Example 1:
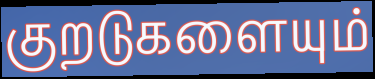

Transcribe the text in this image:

குறடுகளையும்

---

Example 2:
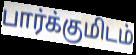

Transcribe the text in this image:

பார்க்குமிடம்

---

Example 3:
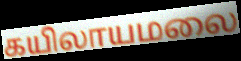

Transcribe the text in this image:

கயிலாயமலை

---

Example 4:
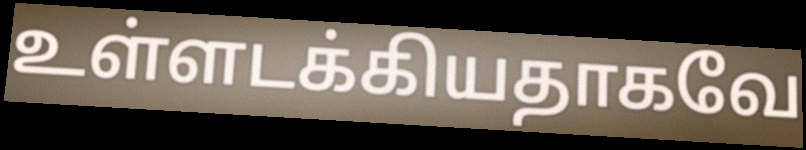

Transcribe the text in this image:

உள்ளடக்கியதாகவே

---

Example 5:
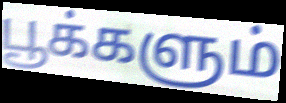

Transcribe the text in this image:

பூக்களும்